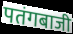
पतंगबाजी